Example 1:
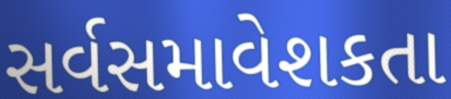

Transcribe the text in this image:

સર્વસમાવેશકતા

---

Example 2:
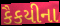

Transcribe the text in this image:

કૈકયીના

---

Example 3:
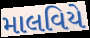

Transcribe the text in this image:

માલવિયે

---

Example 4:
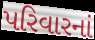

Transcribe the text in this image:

પરિવારનાં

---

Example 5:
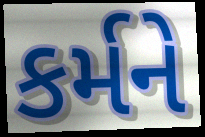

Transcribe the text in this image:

કર્મને